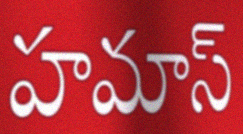
హమాస్